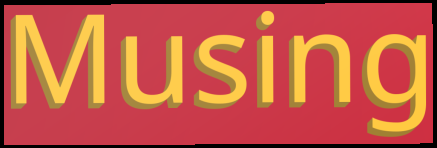
Musing